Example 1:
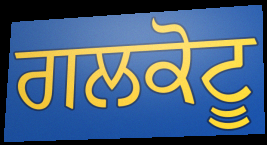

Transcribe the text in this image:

ਗਲਕੋਟੂ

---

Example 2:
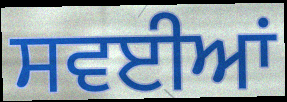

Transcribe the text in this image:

ਸਵਈਆਂ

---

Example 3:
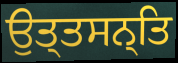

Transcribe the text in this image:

ਉਤ੍ਤਸਨ੍ਤਿ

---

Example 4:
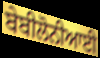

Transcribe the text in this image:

ਬੇਬੀਲੋਨੀਆਈ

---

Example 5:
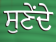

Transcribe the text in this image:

ਸੁਣੇਂਦੇ